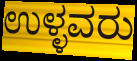
ಉಳ್ಳವರು